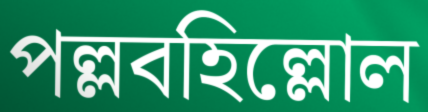
পল্লবহিল্লোল